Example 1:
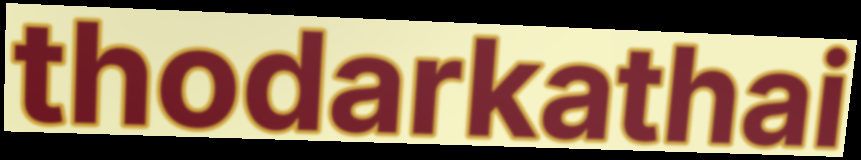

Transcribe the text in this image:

thodarkathai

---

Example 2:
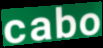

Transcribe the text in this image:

cabo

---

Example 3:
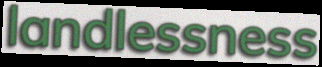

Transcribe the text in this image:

landlessness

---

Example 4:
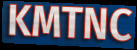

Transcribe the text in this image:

KMTNC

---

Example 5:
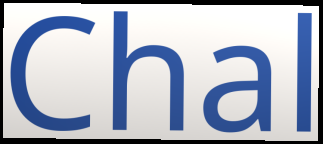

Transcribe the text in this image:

Chal